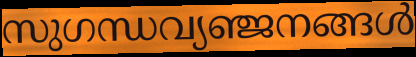
സുഗന്ധവ്യഞ്ജനങ്ങൾ